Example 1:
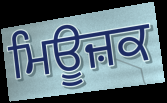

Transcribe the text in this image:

ਮਿਊਜ਼ਕ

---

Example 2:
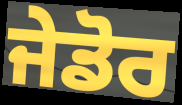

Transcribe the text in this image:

ਜੇਡੋਰ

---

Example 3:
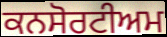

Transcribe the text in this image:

ਕਨਸੋਰਟੀਅਮ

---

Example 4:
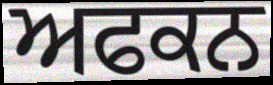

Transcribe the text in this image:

ਅਫਕਨ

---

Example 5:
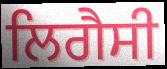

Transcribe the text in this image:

ਲਿਗੈਸੀ